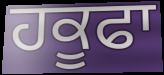
ਹਕੂਫਾ